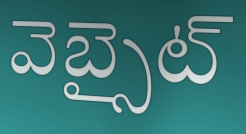
వెబ్సైట్